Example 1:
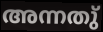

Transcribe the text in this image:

അന്നതു്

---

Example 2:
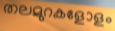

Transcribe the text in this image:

തലമുറകളോളം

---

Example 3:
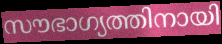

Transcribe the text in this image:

സൗഭാഗ്യത്തിനായി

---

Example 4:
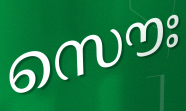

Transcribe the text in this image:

സൌഃ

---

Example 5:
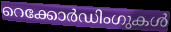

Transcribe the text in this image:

റെക്കോർഡിംഗുകൾ